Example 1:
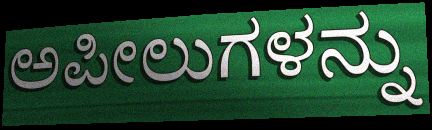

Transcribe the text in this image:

ಅಪೀಲುಗಳನ್ನು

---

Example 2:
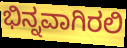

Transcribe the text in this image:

ಭಿನ್ನವಾಗಿರಲಿ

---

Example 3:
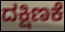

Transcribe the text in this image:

ದಕ್ಷಿಣಕೆ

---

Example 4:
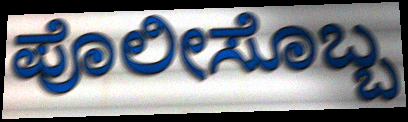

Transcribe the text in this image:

ಪೊಲೀಸೊಬ್ಬ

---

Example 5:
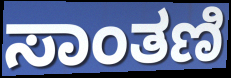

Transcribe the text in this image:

ಸಾಂತಣಿ